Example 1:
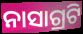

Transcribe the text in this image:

ନାସାଗ୍ରଟି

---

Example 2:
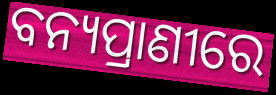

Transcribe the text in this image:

ବନ୍ୟପ୍ରାଣୀରେ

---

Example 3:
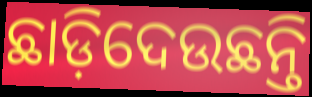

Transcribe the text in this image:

ଛାଡ଼ିଦେଉଛନ୍ତି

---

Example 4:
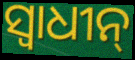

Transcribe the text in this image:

ସ୍ଵାଧୀନ୍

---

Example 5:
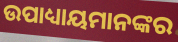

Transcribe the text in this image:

ଉପାଧ୍ୟାୟମାନଙ୍କର